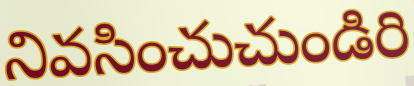
నివసించుచుండిరి